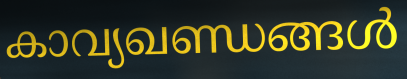
കാവ്യഖണ്ഡങ്ങൾ